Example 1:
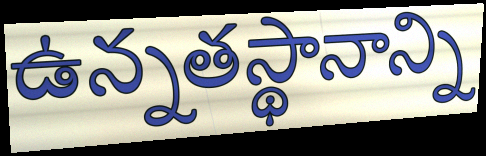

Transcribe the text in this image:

ఉన్నతస్థానాన్ని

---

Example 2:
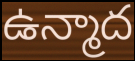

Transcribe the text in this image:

ఉన్మాద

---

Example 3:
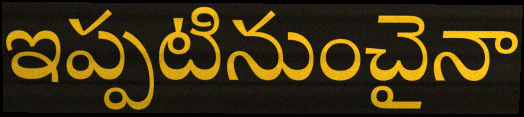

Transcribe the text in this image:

ఇప్పటినుంచైనా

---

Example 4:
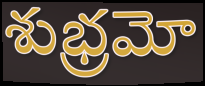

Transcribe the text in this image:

శుభ్రమో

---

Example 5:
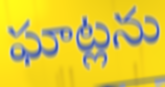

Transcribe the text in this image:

ఘాట్లను